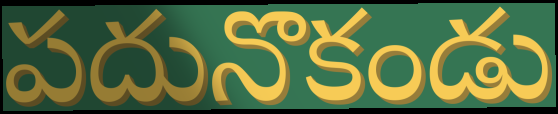
పదునొకండు